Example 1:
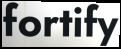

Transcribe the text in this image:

fortify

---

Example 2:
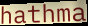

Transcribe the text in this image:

hathma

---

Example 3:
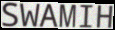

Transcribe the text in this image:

SWAMIH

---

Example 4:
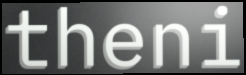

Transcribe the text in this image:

theni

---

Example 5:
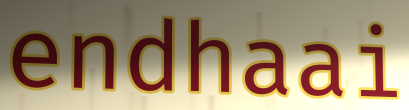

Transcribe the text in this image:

endhaai